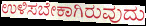
ಉಳಿಸಬೇಕಾಗಿರುವುದು